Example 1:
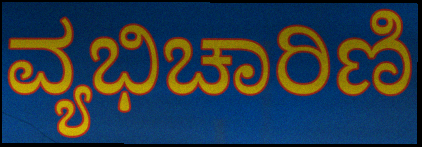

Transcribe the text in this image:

ವ್ಯಭಿಚಾರಿಣಿ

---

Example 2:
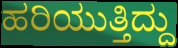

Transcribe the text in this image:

ಹರಿಯುತ್ತಿದ್ದು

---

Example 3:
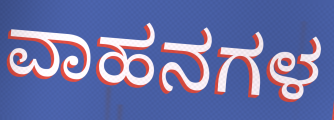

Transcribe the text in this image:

ವಾಹನಗಳ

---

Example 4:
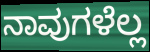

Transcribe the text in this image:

ನಾವುಗಳೆಲ್ಲ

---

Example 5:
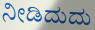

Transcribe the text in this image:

ನೀಡಿದುದು